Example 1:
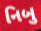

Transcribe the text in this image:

નિબુ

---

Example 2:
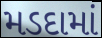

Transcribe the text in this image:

મડદામાં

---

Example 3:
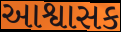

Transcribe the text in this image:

આશ્વાસક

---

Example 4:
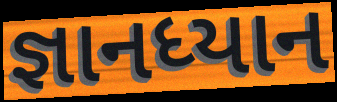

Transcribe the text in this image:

જ્ઞાનધ્યાન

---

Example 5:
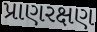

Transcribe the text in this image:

પ્રાણરક્ષણ